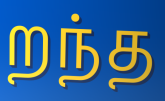
றந்த